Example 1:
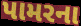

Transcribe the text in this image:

પામરના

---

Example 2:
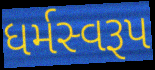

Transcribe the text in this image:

ધર્મસ્વરૂપ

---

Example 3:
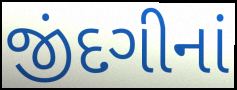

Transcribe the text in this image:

જીંદગીનાં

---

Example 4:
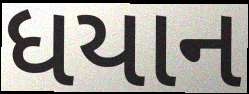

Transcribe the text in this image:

ધયાન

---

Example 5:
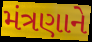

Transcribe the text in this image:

મંત્રણાને